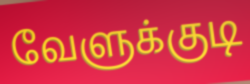
வேளுக்குடி